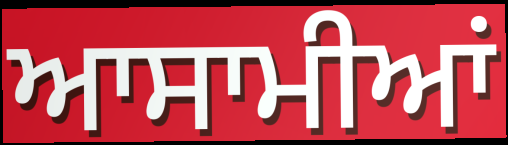
ਆਸਾਮੀਆਂ